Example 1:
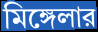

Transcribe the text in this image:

মিঙ্গেলার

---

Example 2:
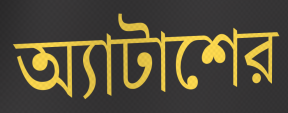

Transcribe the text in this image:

অ্যাটাশের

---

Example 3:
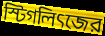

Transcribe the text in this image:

স্টিগলিৎজের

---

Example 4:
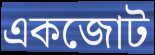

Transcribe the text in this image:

একজোট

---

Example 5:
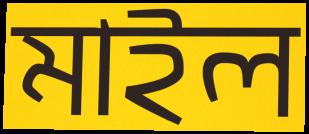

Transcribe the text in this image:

মাইল